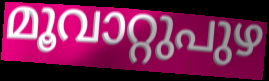
മൂവാറ്റുപുഴ